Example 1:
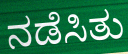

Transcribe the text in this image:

ನಡೆಸಿತು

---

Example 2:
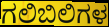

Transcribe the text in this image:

ಗಲಿಬಿಲಿಗಳ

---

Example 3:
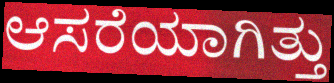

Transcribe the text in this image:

ಆಸರೆಯಾಗಿತ್ತು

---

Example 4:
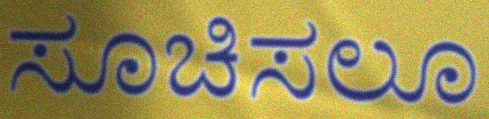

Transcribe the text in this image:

ಸೂಚಿಸಲೂ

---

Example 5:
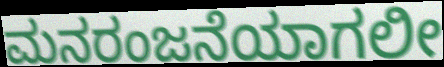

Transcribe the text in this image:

ಮನರಂಜನೆಯಾಗಲೀ